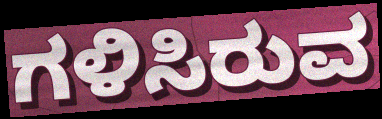
ಗಳಿಸಿರುವ